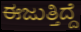
ಈಜುತ್ತಿದ್ದೆ